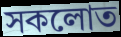
সকলোত